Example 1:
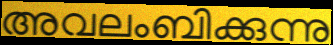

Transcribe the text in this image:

അവലംബിക്കുന്നു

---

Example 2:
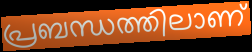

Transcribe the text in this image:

പ്രബന്ധത്തിലാണ്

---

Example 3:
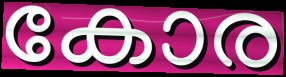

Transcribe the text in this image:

കോര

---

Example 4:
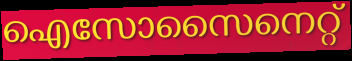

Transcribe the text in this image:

ഐസോസൈനെറ്റ്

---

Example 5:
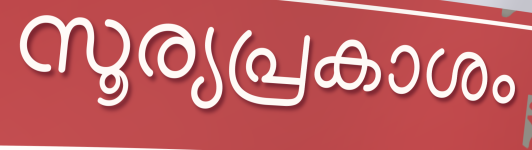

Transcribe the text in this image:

സൂര്യപ്രകാശം